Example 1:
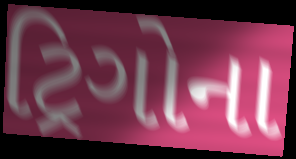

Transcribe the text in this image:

ટ્રિગોના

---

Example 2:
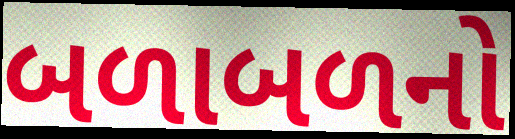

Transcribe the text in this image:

બળાબળનો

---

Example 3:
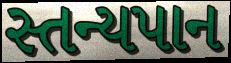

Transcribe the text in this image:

સ્તન્યપાન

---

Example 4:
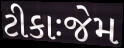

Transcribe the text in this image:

ટીકાઃજેમ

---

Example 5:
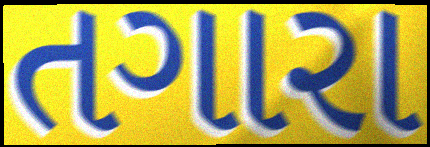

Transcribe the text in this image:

તગારા